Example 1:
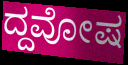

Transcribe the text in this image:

ದ್ದವೋಷ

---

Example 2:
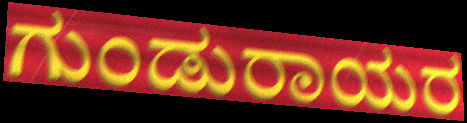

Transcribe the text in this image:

ಗುಂಡುರಾಯರ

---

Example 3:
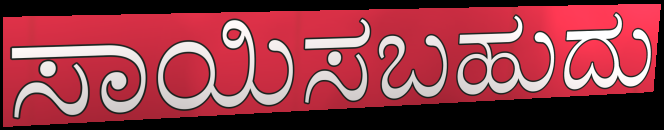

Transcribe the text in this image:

ಸಾಯಿಸಬಹುದು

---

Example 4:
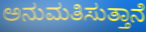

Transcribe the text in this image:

ಅನುಮತಿಸುತ್ತಾನೆ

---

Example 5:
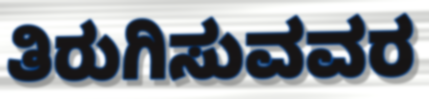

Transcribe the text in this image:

ತಿರುಗಿಸುವವರ